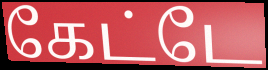
கேட்டே